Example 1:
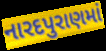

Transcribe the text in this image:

નારદપુરાણમાં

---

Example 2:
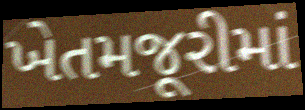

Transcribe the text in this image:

ખેતમજૂરીમાં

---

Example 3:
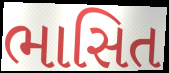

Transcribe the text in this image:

ભાસિત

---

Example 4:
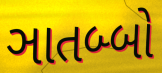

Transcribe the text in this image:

ઞાતબ્બો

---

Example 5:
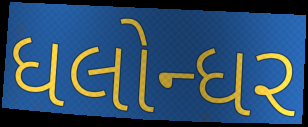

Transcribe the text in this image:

ધલોન્ધર